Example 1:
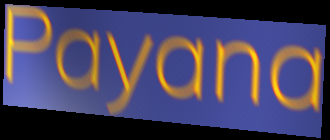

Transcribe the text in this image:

Payana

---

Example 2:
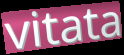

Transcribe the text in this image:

vitata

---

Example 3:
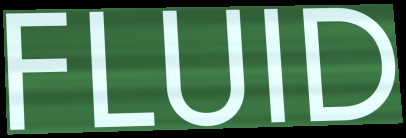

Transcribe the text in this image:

FLUID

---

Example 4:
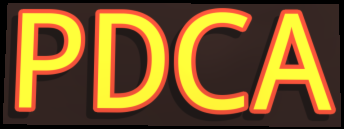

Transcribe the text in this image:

PDCA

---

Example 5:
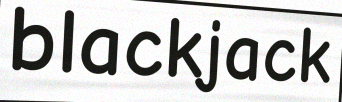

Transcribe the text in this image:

blackjack